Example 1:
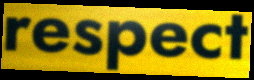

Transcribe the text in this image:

respect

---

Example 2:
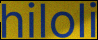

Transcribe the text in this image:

hiloli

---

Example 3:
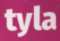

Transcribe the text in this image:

tyla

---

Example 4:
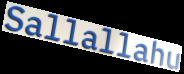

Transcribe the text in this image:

Sallallahu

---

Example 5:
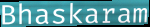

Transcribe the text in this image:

Bhaskaram